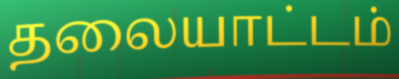
தலையாட்டம்